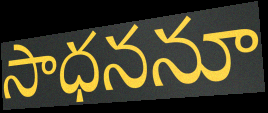
సాధననూ